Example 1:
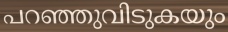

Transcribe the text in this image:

പറഞ്ഞുവിടുകയും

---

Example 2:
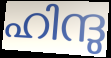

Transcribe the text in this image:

ഹിന്ദു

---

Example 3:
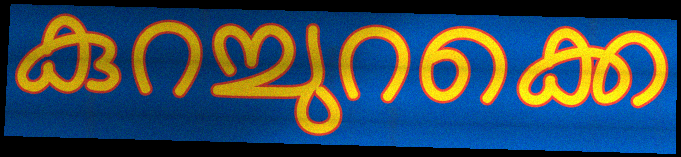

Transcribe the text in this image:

കുറച്ചുറക്കെ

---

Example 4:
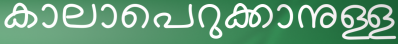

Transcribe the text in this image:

കാലാപെറുക്കാനുള്ള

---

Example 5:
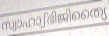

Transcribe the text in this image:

സ്വാഹാഽഭിജിത്യൈ